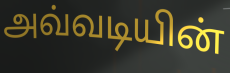
அவ்வடியின்